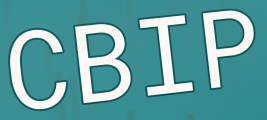
CBIP